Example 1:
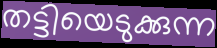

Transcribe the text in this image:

തട്ടിയെടുക്കുന്ന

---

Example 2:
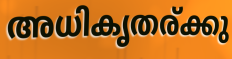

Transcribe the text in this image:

അധികൃതര്ക്കു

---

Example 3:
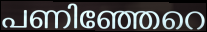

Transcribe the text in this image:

പണിഞ്ഞേറെ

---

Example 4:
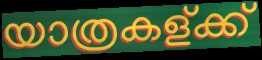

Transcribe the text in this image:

യാത്രകള്ക്ക്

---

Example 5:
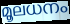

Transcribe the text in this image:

മൂലധനം